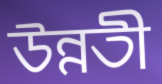
উন্নতী